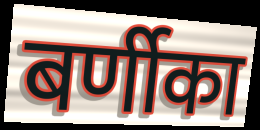
बर्णीका